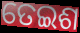
ତେଇଶ